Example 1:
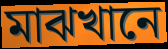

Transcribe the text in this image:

মাঝখানে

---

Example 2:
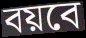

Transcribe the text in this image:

বয়বে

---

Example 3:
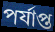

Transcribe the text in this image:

পর্যাপ্ত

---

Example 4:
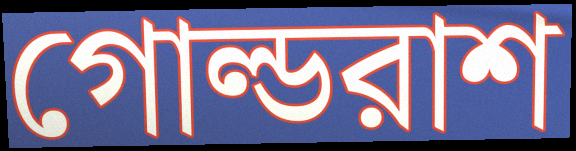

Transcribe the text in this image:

গোল্ডরাশ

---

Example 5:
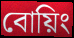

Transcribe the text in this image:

বোয়িং